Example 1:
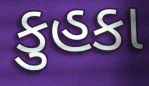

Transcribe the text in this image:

કુહકા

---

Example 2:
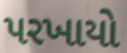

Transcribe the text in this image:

પરખાયો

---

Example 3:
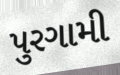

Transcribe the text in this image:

પુરગામી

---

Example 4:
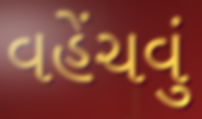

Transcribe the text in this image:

વહેંચવું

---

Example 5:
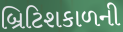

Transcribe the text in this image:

બ્રિટિશકાળની